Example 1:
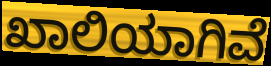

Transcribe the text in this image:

ಖಾಲಿಯಾಗಿವೆ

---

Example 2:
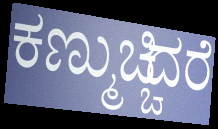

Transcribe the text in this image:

ಕಣ್ಮುಚ್ಚಿದರೆ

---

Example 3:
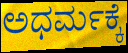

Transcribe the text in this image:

ಅಧರ್ಮಕ್ಕೆ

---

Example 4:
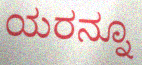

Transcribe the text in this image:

ಯರನ್ನೂ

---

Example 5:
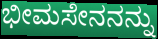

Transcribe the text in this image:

ಭೀಮಸೇನನನ್ನು